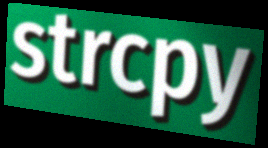
strcpy